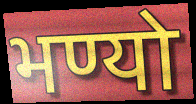
भण्यो